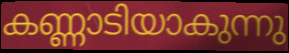
കണ്ണാടിയാകുന്നു